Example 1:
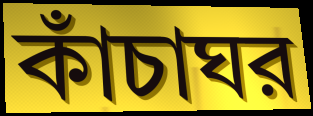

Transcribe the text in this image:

কাঁচাঘর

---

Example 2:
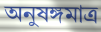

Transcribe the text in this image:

অনুষঙ্গমাত্র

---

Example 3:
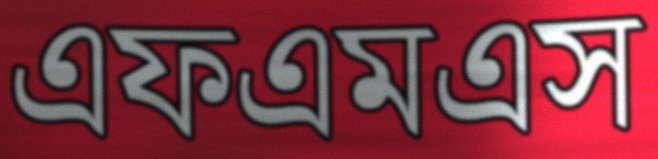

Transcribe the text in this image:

এফএমএস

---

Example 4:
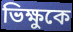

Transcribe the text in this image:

ভিক্ষুকে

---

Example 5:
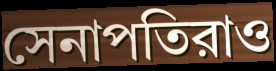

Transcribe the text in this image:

সেনাপতিরাও